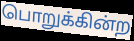
பொறுக்கின்ற